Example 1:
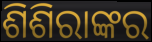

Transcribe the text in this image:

ଶିଶିରାଙ୍କର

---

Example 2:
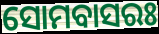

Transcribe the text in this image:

ସୋମବାସରଃ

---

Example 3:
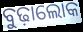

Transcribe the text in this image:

ବୁଢ଼ାଲୋକ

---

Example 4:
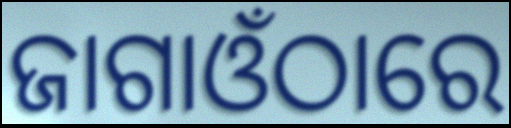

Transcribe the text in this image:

ଜାଗାଓଁଠାରେ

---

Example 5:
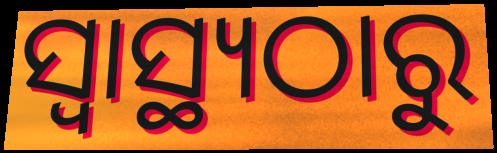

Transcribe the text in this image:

ସ୍ବାସ୍ଥ୍ୟଠାରୁ